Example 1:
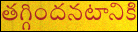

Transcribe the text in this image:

తగ్గిందనటానికి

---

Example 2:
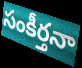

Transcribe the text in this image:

సంకీర్తనా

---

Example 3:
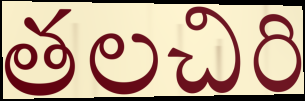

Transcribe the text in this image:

తలచిరి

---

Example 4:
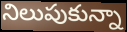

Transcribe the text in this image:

నిలుపుకున్నా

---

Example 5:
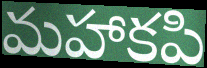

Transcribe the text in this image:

మహాకపి